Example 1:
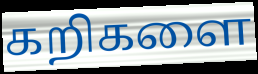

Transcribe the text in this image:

கறிகளை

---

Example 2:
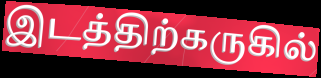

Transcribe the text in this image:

இடத்திற்கருகில்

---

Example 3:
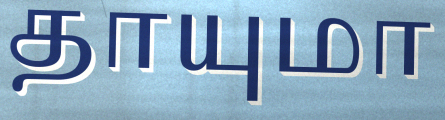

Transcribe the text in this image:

தாயுமா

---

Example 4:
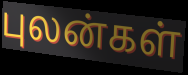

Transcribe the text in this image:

புலன்கள்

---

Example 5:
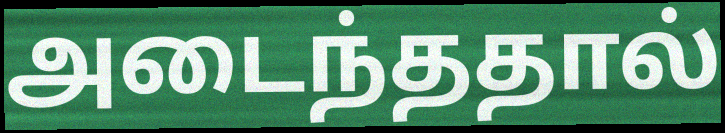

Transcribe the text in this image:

அடைந்ததால்